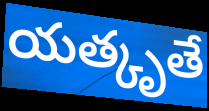
యత్కృతే